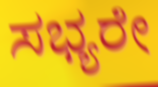
ಸಭ್ಯರೇ